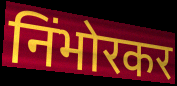
निंभोरकर